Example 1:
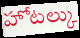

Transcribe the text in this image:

హోటల్కు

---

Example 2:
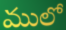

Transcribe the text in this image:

ములో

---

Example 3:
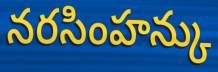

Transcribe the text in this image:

నరసింహన్కు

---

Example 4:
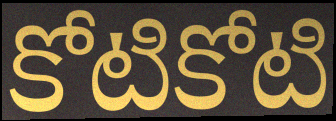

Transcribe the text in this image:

కోటికోటి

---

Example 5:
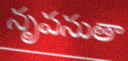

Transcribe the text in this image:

నృపసుతా